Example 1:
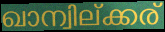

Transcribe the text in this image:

ഖാന്വില്ക്കര്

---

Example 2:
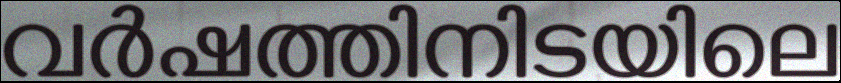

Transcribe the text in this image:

വർഷത്തിനിടയിലെ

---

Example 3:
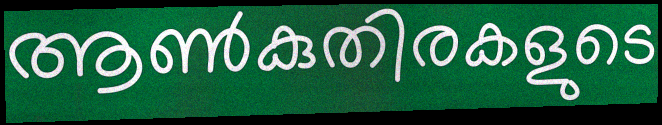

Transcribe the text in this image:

ആൺകുതിരകളുടെ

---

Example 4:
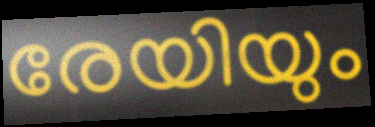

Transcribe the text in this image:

രേയിയും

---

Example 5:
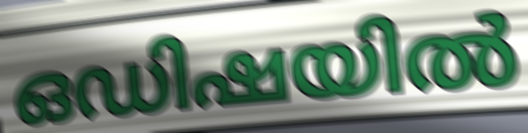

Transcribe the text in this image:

ഒഡിഷയിൽ